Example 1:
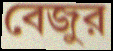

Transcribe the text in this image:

বেজুর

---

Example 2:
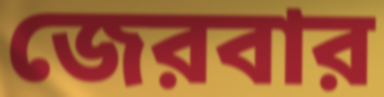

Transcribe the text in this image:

জেরবার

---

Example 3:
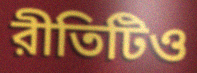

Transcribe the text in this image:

রীতিটিও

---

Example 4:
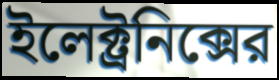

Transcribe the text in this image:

ইলেক্ট্রনিক্সের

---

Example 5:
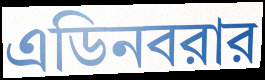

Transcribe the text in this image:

এডিনবরার